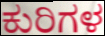
ಕುರಿಗಳ